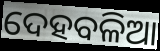
ଦେହବଳିଆ